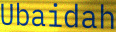
Ubaidah